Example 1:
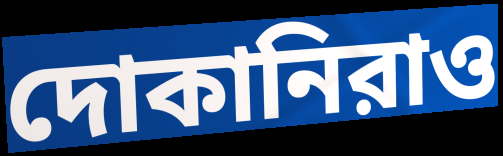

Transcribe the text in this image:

দোকানিরাও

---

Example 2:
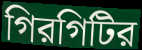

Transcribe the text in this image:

গিরগিটির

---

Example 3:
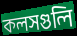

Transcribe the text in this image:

কলসগুলি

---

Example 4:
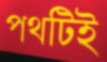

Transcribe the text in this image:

পথটিই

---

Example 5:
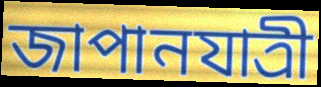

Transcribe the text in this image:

জাপানযাত্রী